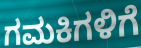
ಗಮಕಿಗಳಿಗೆ